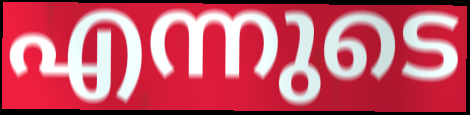
എന്നുടെ